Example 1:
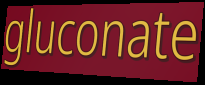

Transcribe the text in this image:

gluconate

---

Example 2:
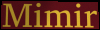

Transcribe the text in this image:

Mimir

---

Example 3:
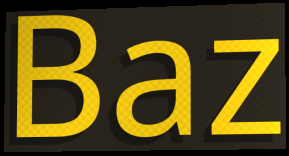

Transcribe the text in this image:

Baz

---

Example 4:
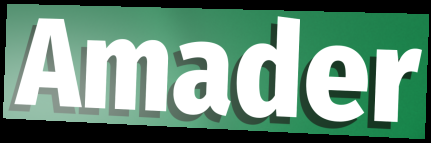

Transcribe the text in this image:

Amader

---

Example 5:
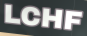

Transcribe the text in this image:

LCHF